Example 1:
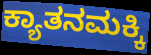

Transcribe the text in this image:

ಕ್ಯಾತನಮಕ್ಕಿ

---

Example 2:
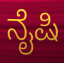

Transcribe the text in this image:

ನೈಷಿ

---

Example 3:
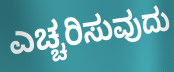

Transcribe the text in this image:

ಎಚ್ಚರಿಸುವುದು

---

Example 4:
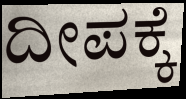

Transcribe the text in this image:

ದೀಪಕ್ಕೆ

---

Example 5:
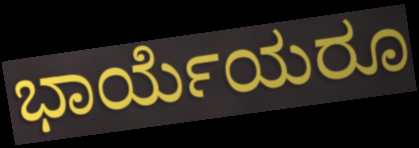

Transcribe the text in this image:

ಭಾರ್ಯೆಯರೂ